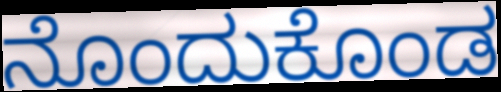
ನೊಂದುಕೊಂಡ